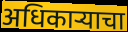
अधिकार्‍याचा